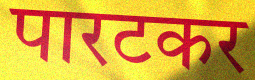
पारटकर